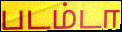
படம்டா